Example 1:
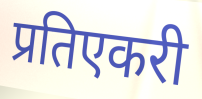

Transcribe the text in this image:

प्रतिएकरी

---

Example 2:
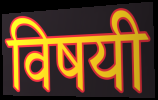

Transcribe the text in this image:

विषयी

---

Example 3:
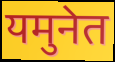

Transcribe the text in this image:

यमुनेत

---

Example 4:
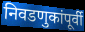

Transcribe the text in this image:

निवडणुकांपूर्वी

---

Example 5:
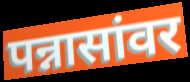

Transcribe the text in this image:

पन्नासांवर